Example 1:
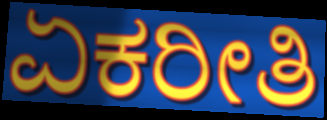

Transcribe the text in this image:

ಏಕರೀತಿ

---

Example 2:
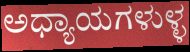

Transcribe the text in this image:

ಅಧ್ಯಾಯಗಳುಳ್ಳ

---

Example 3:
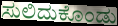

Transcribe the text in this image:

ಸುಲಿದುಕೊಂಡು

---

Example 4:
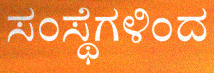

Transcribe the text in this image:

ಸಂಸ್ಥೆಗಳಿಂದ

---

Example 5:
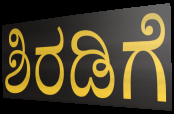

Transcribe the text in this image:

ಶಿರಡಿಗೆ